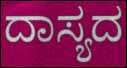
ದಾಸ್ಯದ